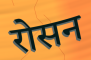
रोसन